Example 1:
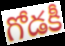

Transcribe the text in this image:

గోడకీ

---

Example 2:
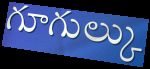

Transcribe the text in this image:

గూగుల్కు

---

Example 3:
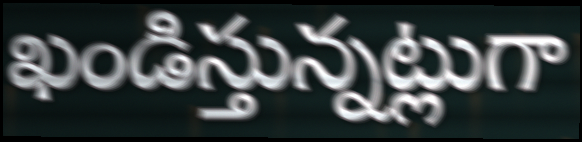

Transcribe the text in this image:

ఖండిస్తున్నట్లుగా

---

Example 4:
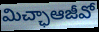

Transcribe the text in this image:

మిచ్ఛాఆజీవో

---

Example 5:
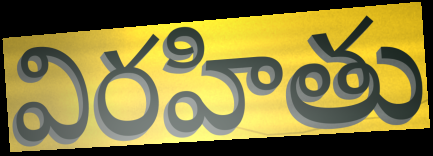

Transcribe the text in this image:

విరహితు